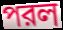
পরল